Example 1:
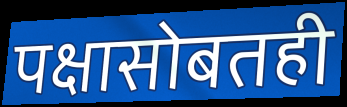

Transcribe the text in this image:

पक्षासोबतही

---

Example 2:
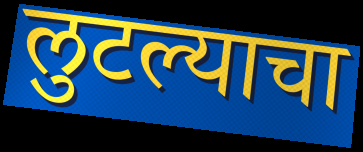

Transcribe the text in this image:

लुटल्याचा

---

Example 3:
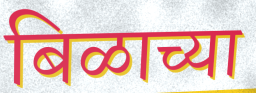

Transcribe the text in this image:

बिळाच्या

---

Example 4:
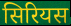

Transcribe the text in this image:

सिरियस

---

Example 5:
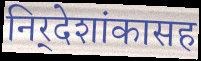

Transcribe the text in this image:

निर्देशांकासह